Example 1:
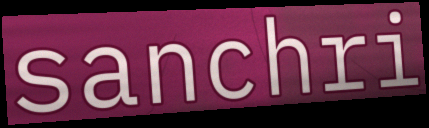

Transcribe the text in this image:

sanchri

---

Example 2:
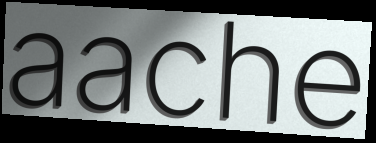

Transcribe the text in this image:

aache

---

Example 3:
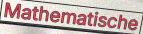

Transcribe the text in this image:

Mathematische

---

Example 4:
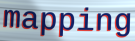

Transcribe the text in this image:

mapping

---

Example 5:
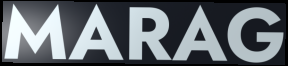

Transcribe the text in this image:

MARAG